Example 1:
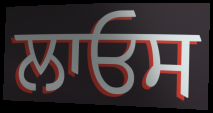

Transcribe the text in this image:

ਲਾਓਸ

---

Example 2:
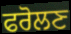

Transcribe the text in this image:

ਫਰੋਲਣ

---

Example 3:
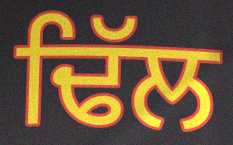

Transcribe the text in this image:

ਢਿੱਲ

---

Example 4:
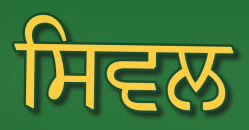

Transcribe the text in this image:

ਸਿਵਲ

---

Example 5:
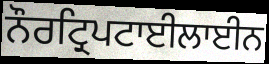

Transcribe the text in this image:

ਨੌਰਟ੍ਰਿਪਟਾਈਲਾਈਨ